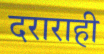
दराराही